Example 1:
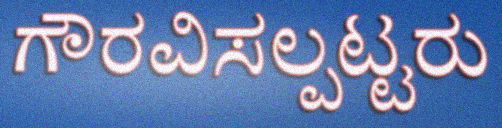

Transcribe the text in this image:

ಗೌರವಿಸಲ್ಪಟ್ಟರು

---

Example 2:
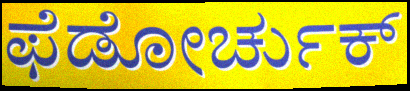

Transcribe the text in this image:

ಫೆಡೋರ್ಚುಕ್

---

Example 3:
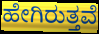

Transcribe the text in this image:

ಹೇಗಿರುತ್ತವೆ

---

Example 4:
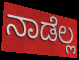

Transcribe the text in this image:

ನಾಡೆಲ್ಲ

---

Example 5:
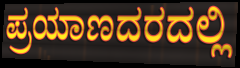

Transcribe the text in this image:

ಪ್ರಯಾಣದರದಲ್ಲಿ